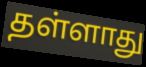
தள்ளாது